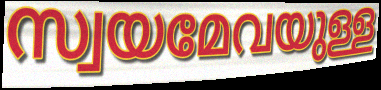
സ്വയമേവയുള്ള